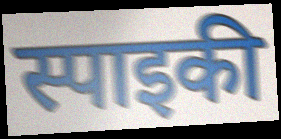
स्पाइकी